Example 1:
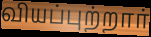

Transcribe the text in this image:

வியப்புற்றார்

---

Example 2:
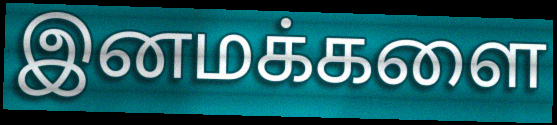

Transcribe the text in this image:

இனமக்களை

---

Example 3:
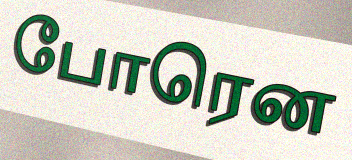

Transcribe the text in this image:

போரென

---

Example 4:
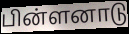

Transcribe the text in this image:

பின்ளனாடு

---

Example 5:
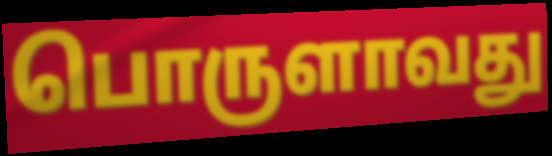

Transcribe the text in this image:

பொருளாவது